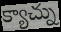
క్యాచ్ను